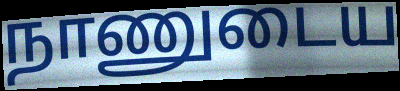
நாணுடைய